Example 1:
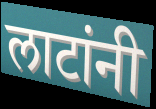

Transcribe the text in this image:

लाटांनी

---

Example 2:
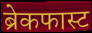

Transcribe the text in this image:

ब्रेकफास्ट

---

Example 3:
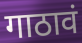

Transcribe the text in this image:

गाठावं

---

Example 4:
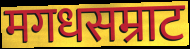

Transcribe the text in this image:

मगधसम्राट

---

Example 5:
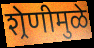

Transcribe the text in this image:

श्रेणीमुळे